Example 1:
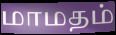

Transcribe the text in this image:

மாமதம்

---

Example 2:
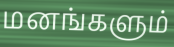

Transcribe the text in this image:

மனங்களும்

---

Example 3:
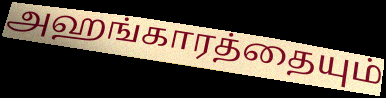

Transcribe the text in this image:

அஹங்காரத்தையும்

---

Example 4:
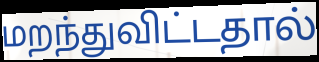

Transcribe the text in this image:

மறந்துவிட்டதால்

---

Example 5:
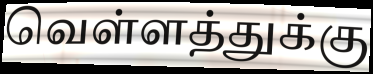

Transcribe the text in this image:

வெள்ளத்துக்கு